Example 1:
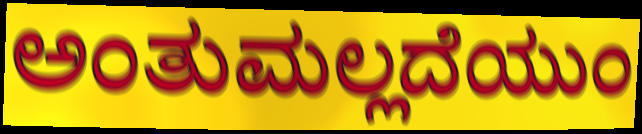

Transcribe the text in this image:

ಅಂತುಮಲ್ಲದೆಯುಂ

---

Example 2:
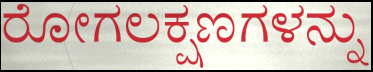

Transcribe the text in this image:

ರೋಗಲಕ್ಷಣಗಳನ್ನು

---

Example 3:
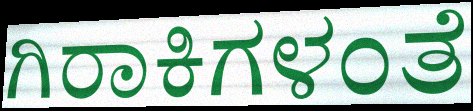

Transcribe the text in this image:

ಗಿರಾಕಿಗಳಂತೆ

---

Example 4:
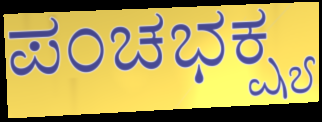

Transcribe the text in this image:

ಪಂಚಭಕ್ಷ್ಯ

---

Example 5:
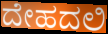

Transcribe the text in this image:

ದೇಹದಲಿ